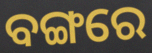
ବଙ୍ଗରେ